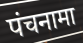
पंचनामा